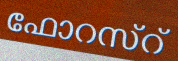
ഫോറസ്റ്